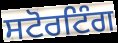
ਸਟੋਰਟਿੰਗ